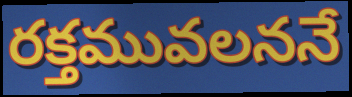
రక్తమువలననే